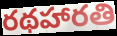
రథహారతి